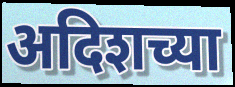
अदिशच्या